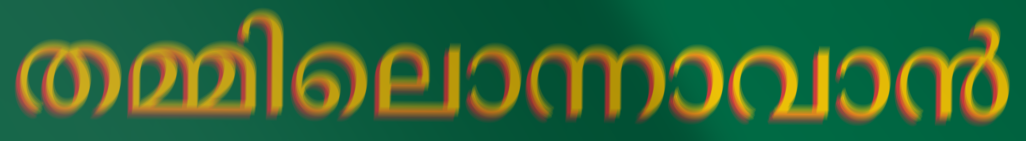
തമ്മിലൊന്നാവാൻ